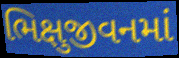
ભિક્ષુજીવનમાં